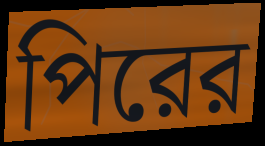
পিরের